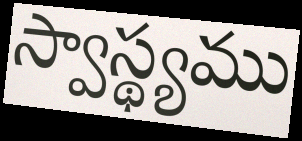
స్వాస్థ్యము